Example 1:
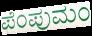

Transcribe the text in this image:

ಪೆಂಪುಮಂ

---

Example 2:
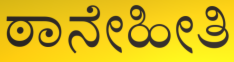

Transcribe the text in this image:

ಠಾನೇಹೀತಿ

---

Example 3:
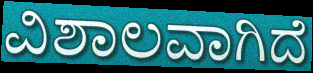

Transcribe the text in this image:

ವಿಶಾಲವಾಗಿದೆ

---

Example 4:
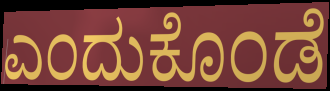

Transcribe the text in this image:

ಎಂದುಕೊಂಡೆ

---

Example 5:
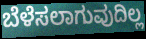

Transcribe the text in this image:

ಬೆಳೆಸಲಾಗುವುದಿಲ್ಲ